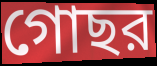
গোছর